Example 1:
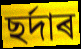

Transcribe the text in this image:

ছৰ্দাৰ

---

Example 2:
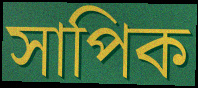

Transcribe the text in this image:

সাপিক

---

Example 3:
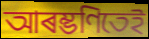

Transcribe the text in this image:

আৰম্ভণিতেই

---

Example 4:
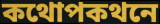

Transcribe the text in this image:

কথোপকথনে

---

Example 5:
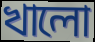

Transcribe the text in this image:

খালো